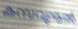
കസവുനൂൽ